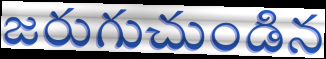
జరుగుచుండిన